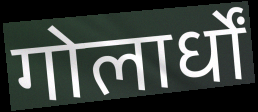
गोलार्धों